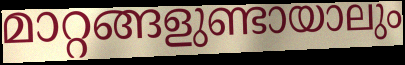
മാറ്റങ്ങളുണ്ടായാലും